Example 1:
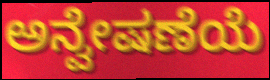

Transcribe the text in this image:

ಅನ್ವೇಷಣೆಯೆ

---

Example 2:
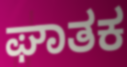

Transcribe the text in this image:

ಘಾತಕ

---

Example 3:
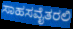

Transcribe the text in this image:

ಸಾಹಸವೈತರಲಿ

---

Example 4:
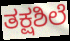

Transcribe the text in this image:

ತಕ್ಷಶಿಲೆ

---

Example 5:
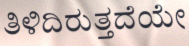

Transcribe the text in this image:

ತಿಳಿದಿರುತ್ತದೆಯೇ